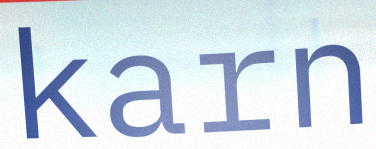
karn